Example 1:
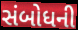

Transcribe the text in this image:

સંબોધની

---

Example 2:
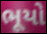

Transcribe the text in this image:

ભૂયો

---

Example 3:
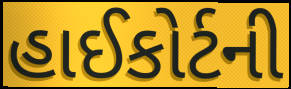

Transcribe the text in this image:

હાઈકોર્ટની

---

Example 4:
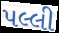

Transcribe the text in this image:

પલ્લી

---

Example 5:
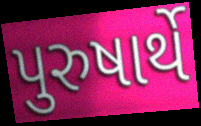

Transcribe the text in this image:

પુરુષાર્થે